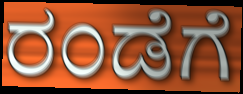
ರಂಡೆಗೆ